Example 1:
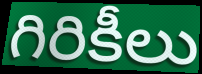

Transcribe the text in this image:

గిరికీలు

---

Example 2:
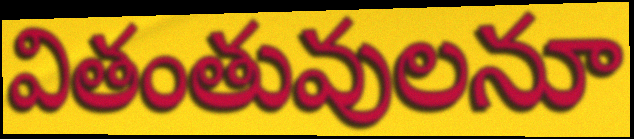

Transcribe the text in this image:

వితంతువులనూ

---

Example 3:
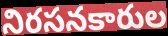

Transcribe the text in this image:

నిరసనకారుల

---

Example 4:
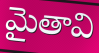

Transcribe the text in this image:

మైతావి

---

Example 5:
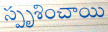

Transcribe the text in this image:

స్పృశించాయి